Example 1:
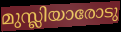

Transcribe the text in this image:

മുസ്ലിയാരോടു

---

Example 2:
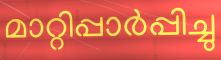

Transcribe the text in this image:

മാറ്റിപ്പാർപ്പിച്ചു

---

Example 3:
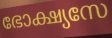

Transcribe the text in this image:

ഭോക്ഷ്യസേ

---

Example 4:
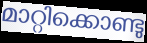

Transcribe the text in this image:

മാറ്റിക്കൊണ്ടു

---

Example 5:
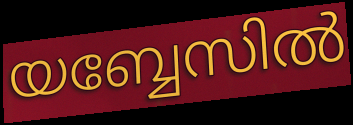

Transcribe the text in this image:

യബ്ബേസിൽ